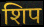
शिप